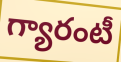
గ్యారంటీ